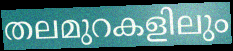
തലമുറകളിലും